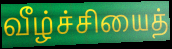
வீழ்ச்சியைத்